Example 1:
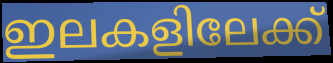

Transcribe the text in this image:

ഇലകളിലേക്ക്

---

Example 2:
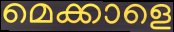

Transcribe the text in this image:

മെക്കാളെ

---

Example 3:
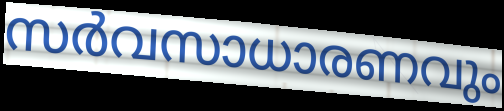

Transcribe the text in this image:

സർവസാധാരണവും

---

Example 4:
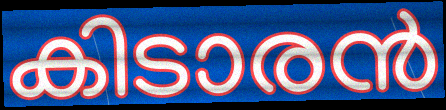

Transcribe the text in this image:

കിടാരൻ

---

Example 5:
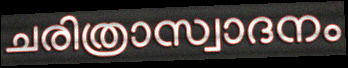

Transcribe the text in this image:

ചരിത്രാസ്വാദനം